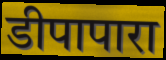
डीपापारा